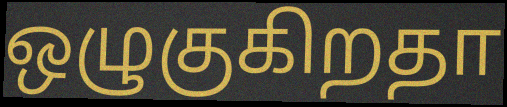
ஒழுகுகிறதா